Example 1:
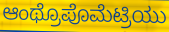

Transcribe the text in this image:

ಆಂಥ್ರೊಪೊಮೆಟ್ರಿಯು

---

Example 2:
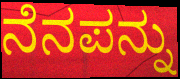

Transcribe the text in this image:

ನೆನಪನ್ನು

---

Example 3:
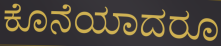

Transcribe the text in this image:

ಕೊನೆಯಾದರೂ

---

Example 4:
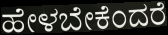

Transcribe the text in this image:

ಹೇಳಬೇಕೆಂದರೆ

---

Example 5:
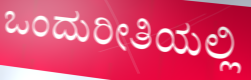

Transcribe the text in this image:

ಒಂದುರೀತಿಯಲ್ಲಿ